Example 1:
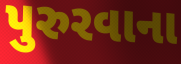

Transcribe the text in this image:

પુરુરવાના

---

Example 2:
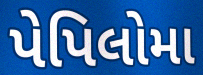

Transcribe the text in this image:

પેપિલોમા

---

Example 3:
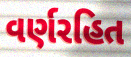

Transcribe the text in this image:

વર્ણરહિત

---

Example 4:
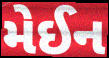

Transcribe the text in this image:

મેઈન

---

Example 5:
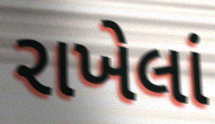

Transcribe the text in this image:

રાખેલાં